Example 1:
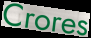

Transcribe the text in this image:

Crores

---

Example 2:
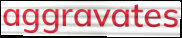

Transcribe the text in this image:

aggravates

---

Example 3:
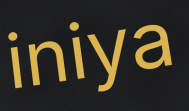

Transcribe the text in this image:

iniya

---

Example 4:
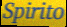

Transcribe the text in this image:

Spirito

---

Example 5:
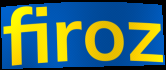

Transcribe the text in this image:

firoz